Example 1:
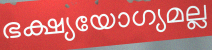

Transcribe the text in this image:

ഭക്ഷ്യയോഗ്യമല്ല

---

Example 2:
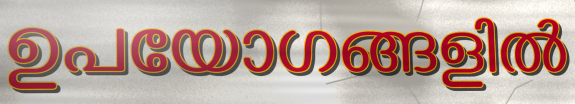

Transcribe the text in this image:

ഉപയോഗങ്ങളിൽ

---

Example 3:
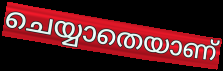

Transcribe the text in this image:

ചെയ്യാതെയാണ്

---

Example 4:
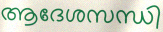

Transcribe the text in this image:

ആദേശസന്ധി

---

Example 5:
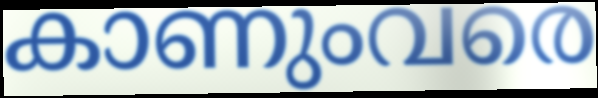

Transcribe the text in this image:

കാണുംവരെ